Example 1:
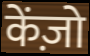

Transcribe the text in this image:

केंज़ो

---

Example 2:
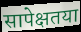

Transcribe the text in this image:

सापेक्षतया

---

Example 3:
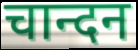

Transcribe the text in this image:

चान्दन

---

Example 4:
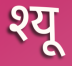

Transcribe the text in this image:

श्यू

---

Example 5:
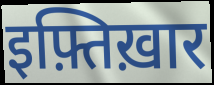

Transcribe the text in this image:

इफ़्तिख़ार